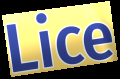
Lice